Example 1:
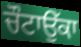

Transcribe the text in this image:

ਚੌਟਾਉੱਕਾ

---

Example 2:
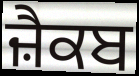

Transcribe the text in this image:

ਜ਼ੈਕਬ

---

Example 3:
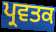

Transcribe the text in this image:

ਪ੍ਰਵਤਕ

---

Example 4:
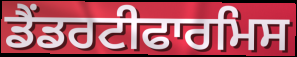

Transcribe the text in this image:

ਡੈਂਡਰਟੀਫਾਰਮਿਸ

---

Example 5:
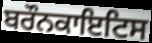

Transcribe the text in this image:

ਬਰੌਨਕਾਇਟਿਸ